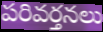
పరివర్తనలు